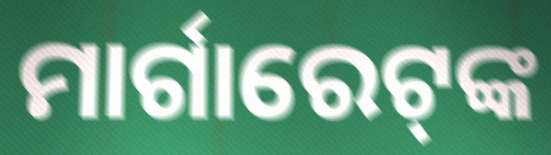
ମାର୍ଗାରେଟ୍‍ଙ୍କ